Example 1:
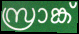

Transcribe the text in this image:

സ്രാങ്ക്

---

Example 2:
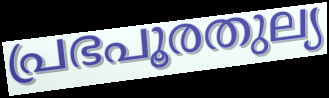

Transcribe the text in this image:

പ്രഭപൂരതുല്യ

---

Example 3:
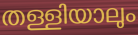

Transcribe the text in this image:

തള്ളിയാലും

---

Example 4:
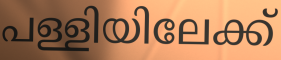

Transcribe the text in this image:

പള്ളിയിലേക്ക്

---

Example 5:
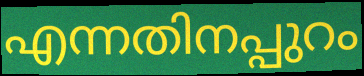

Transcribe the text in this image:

എന്നതിനപ്പുറം